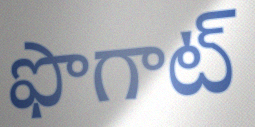
ఫొగాట్